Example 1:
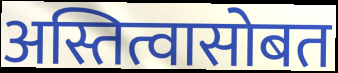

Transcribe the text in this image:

अस्तित्वासोबत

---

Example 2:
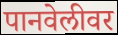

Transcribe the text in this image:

पानवेलीवर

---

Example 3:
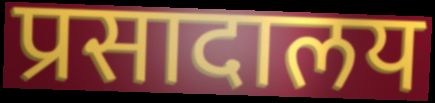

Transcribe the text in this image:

प्रसादालय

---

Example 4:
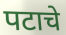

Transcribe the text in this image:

पटाचे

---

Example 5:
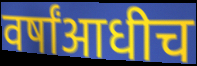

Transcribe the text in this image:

वर्षांआधीच